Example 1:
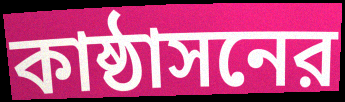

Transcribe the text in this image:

কাষ্ঠাসনের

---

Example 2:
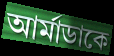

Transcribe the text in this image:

আর্মাডাকে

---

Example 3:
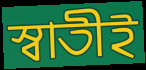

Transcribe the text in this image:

স্বাতীই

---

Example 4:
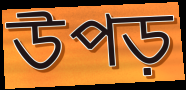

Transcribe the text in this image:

উপড়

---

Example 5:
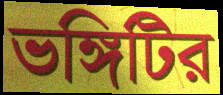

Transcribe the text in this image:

ভঙ্গিটির